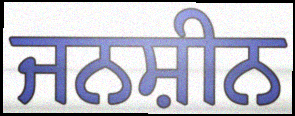
ਜਨਸ਼ੀਨ